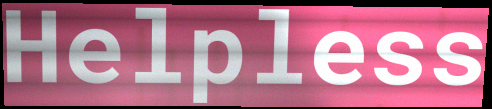
Helpless